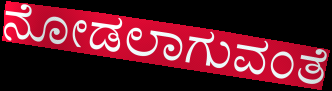
ನೋಡಲಾಗುವಂತೆ